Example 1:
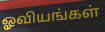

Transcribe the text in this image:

ஓவியங்கள்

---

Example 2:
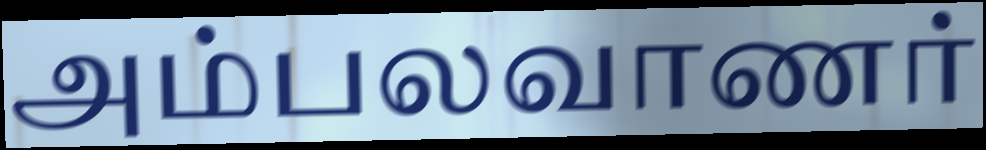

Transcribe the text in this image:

அம்பலவாணர்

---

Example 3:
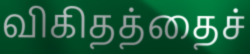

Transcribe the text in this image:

விகிதத்தைச்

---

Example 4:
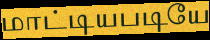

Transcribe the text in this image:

மாட்டியபடியே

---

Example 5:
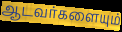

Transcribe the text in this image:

ஆடவர்களையும்